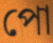
পো